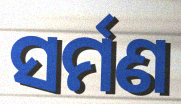
ସର୍ମଣ